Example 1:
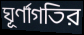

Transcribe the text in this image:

ঘূর্ণাগতির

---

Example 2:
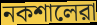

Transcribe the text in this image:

নকশালেরা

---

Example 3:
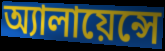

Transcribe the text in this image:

অ্যালায়েন্সে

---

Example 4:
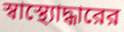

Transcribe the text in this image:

স্বাস্থ্যোদ্ধারের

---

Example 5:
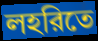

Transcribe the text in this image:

লহরিতে